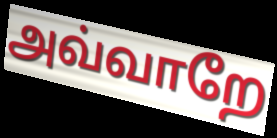
அவ்வாறே